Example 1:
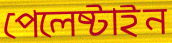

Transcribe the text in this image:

পেলেষ্টাইন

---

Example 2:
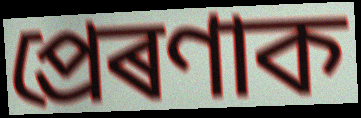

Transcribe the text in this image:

প্ৰেৰণাক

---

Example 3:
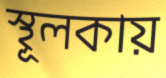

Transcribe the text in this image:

স্থূলকায়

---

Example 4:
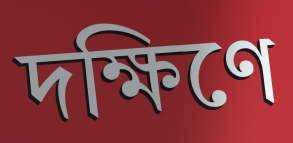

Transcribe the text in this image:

দক্ষিণে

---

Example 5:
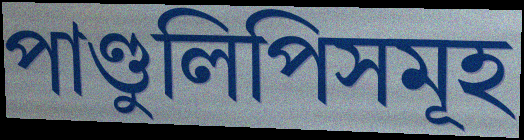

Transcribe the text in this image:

পাণ্ডুলিপিসমূহ